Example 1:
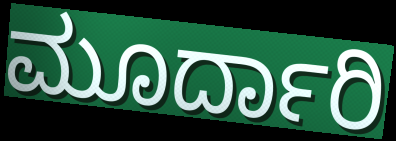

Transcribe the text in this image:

ಮೂರ್ದಾರಿ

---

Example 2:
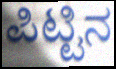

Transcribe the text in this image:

ಪಿಟ್ಟಿನ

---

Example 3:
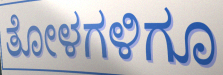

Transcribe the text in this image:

ತೋಳಗಳಿಗೂ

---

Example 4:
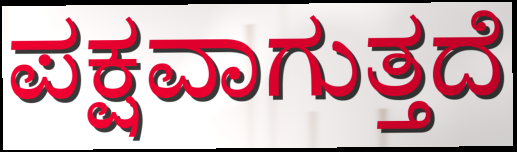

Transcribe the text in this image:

ಪಕ್ಷವಾಗುತ್ತದೆ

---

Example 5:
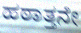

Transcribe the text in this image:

ಹಠಾತ್ತನೇ